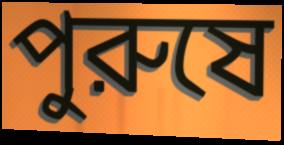
পুৰুষে